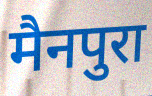
मैनपुरा